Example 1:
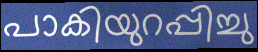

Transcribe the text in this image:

പാകിയുറപ്പിച്ചു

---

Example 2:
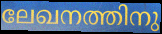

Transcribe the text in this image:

ലേഖനത്തിനു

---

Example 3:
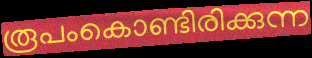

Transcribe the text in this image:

രൂപംകൊണ്ടിരിക്കുന്ന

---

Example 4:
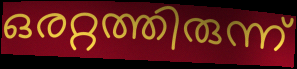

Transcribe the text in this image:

ഒരറ്റത്തിരുന്ന്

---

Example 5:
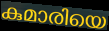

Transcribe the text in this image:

കുമാരിയെ